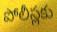
పోలీస్లకు